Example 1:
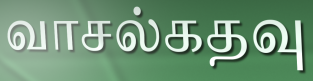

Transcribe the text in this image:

வாசல்கதவு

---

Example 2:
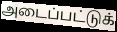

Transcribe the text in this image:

அடைப்பட்டுக்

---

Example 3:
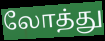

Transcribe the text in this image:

லோத்து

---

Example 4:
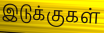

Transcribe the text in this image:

இடுக்குகள்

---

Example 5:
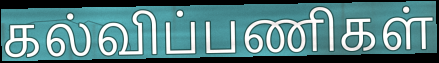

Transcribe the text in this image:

கல்விப்பணிகள்